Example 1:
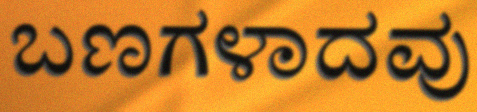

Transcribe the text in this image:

ಬಣಗಳಾದವು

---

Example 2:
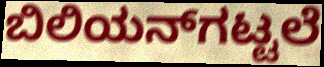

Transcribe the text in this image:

ಬಿಲಿಯನ್‌ಗಟ್ಟಲೆ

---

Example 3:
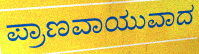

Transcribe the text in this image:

ಪ್ರಾಣವಾಯುವಾದ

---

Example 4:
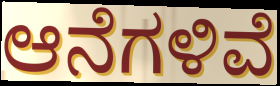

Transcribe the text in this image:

ಆನೆಗಳಿವೆ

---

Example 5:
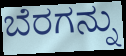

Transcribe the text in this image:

ಬೆರಗನ್ನು